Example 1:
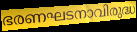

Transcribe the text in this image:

ഭരണഘടനാവിരുദ്ധ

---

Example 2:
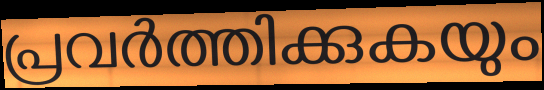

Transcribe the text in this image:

പ്രവർത്തിക്കുകയും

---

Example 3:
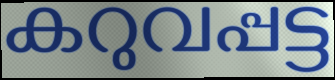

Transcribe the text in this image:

കറുവപ്പട്ട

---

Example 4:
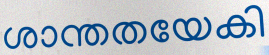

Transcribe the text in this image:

ശാന്തതയേകി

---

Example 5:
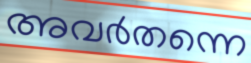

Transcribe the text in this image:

അവർതന്നെ